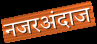
नजरअंदाज